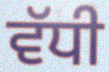
ਵੱਧੀ